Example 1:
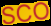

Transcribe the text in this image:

SCO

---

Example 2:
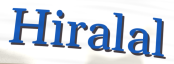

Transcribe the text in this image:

Hiralal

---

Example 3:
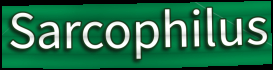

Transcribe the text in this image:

Sarcophilus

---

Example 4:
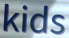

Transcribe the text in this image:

kids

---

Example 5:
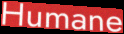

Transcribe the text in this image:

Humane